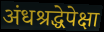
अंधश्रद्धेपेक्षा